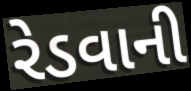
રેડવાની